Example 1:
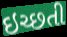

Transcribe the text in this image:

ઇચ્છતી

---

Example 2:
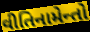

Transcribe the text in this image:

વીતિનામેન્તો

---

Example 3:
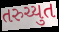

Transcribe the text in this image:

તરુચ્યુત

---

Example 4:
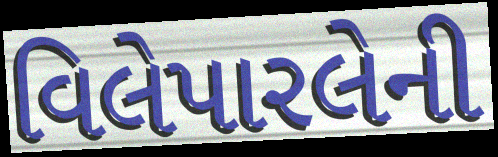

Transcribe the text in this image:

વિલેપારલેની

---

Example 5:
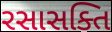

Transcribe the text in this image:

રસાસક્તિ